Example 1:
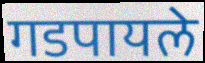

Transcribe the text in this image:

गडपायले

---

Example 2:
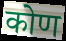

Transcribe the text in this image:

कोण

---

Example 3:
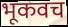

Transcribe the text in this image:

भूकवच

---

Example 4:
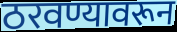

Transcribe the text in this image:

ठरवण्यावरून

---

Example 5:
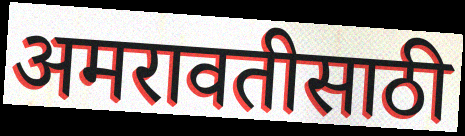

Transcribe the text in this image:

अमरावतीसाठी